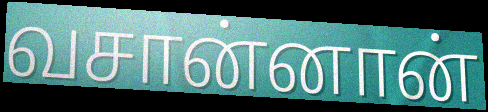
வசான்னான்